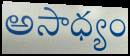
అసాధ్యం